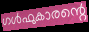
ഗൾഫുകാരന്റെ